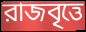
রাজবৃত্তে